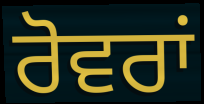
ਰੋਵਰਾਂ